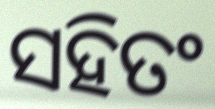
ସହିତଂ